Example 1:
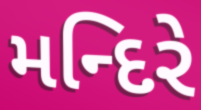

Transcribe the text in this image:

મન્દિરે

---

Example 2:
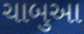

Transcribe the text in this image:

ચાબુઆ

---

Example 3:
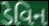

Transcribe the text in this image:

ડેવિન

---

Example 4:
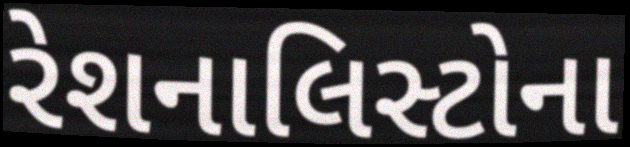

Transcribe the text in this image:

રેશનાલિસ્ટોના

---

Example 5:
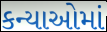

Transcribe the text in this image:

કન્યાઓમાં